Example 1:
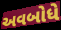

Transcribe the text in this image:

અવબોધે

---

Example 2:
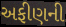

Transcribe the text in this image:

અફીણની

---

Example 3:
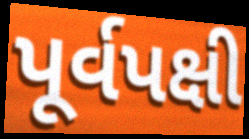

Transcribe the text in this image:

પૂર્વપક્ષી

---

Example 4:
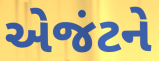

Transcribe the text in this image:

એજંટને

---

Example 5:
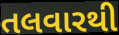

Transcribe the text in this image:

તલવારથી